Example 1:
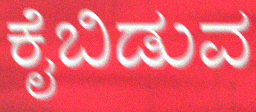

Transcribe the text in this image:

ಕೈಬಿಡುವ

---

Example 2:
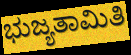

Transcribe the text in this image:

ಭುಜ್ಯತಾಮಿತಿ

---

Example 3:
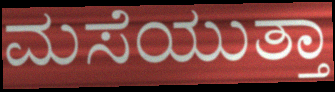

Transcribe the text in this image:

ಮಸೆಯುತ್ತಾ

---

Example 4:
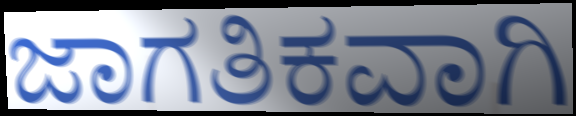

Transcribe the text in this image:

ಜಾಗತಿಕವಾಗಿ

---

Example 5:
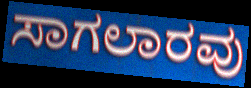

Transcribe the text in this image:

ಸಾಗಲಾರವು